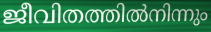
ജീവിതത്തിൽനിന്നും